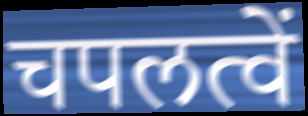
चपलत्वें